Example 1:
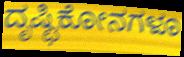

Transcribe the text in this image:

ದೃಷ್ಟಿಕೋನಗಳೂ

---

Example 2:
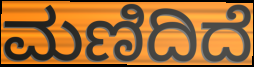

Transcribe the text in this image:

ಮಣಿದಿದೆ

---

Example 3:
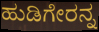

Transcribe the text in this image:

ಹುಡಿಗೇರನ್ನ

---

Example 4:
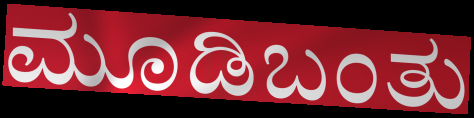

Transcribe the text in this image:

ಮೂಡಿಬಂತು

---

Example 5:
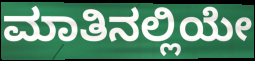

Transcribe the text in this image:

ಮಾತಿನಲ್ಲಿಯೇ